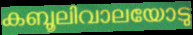
കബൂലിവാലയോടു